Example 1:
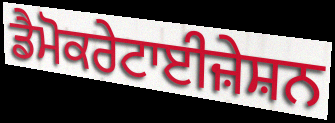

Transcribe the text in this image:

ਡੈਮੋਕਰੇਟਾਈਜ਼ੇਸ਼ਨ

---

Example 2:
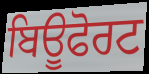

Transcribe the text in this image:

ਬਿਊਫੋਰਟ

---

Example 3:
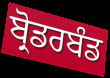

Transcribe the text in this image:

ਬ੍ਰੋਡਰਬੰਡ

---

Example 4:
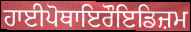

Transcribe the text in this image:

ਹਾਈਪੋਥਾਇਰੌਇਡਿਜ਼ਮ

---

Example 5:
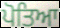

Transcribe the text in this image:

ਪੋਤਿਆ